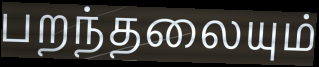
பறந்தலையும்